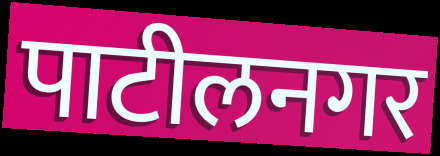
पाटीलनगर